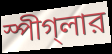
স্পীগ্‌লার